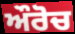
ਔਰੋਚ